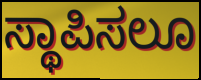
ಸ್ಥಾಪಿಸಲೂ